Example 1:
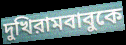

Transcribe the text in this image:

দুখিরামবাবুকে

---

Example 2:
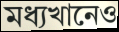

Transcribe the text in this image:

মধ্যখানেও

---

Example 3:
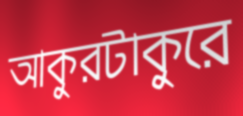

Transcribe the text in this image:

আকুরটাকুরে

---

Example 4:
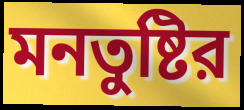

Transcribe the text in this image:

মনতুষ্টির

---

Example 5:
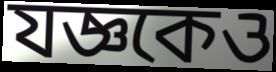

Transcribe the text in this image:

যজ্ঞকেও